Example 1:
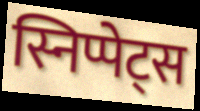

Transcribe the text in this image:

स्निप्पेट्स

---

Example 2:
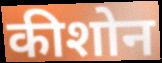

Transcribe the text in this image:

कीशोन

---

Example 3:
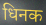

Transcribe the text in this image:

धिनक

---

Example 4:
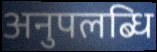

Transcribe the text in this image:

अनुपलब्धि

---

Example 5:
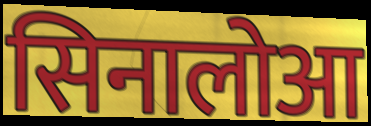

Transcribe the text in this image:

सिनालोआ